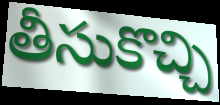
తీసుకొచ్చి